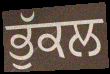
ਭੁੱਕਲ